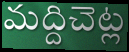
మద్దిచెట్ల